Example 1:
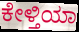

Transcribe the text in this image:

ಕೇಳ್ತಿಯಾ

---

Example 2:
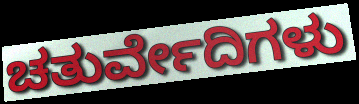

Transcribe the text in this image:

ಚತುರ್ವೇದಿಗಳು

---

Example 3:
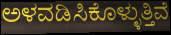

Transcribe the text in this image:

ಅಳವಡಿಸಿಕೊಳ್ಳುತ್ತಿವೆ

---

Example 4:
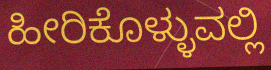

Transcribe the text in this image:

ಹೀರಿಕೊಳ್ಳುವಲ್ಲಿ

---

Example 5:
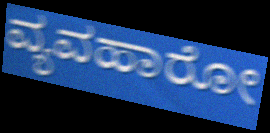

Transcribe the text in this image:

ವ್ಯವಹಾರೋ